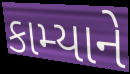
કામ્યાને